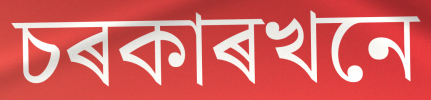
চৰকাৰখনে